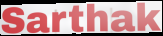
Sarthak